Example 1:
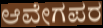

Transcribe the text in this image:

ಆವೇಗಪರ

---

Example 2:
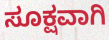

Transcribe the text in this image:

ಸೂಕ್ಷವಾಗಿ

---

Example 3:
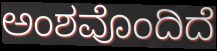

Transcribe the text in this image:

ಅಂಶವೊಂದಿದೆ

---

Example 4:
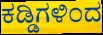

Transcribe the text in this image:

ಕಡ್ಡಿಗಳಿಂದ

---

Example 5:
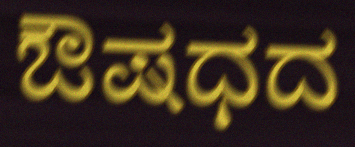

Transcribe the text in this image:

ಔಷಧದ